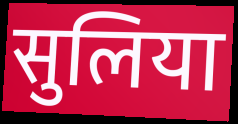
सुलिया